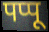
पप्‍पू